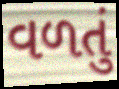
વળતું